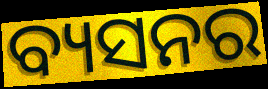
ବ୍ୟସନର